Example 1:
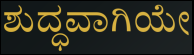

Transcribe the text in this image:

ಶುದ್ಧವಾಗಿಯೇ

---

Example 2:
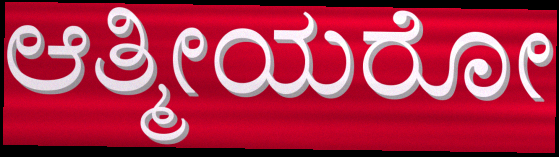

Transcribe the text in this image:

ಆತ್ಮೀಯರೋ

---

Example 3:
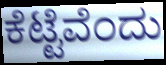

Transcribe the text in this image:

ಕೆಟ್ಟೆವೆಂದು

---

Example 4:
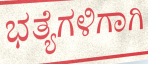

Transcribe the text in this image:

ಭತ್ಯೆಗಳಿಗಾಗಿ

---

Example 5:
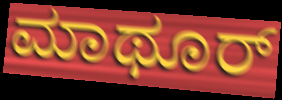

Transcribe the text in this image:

ಮಾಥೂರ್